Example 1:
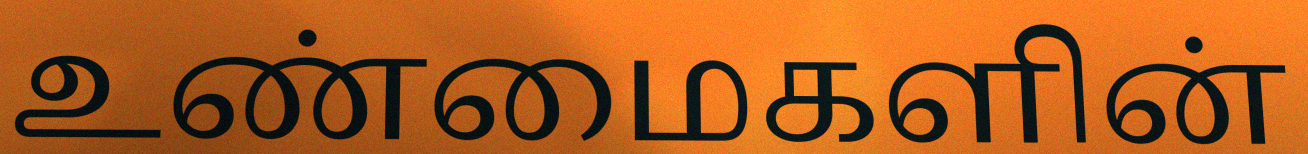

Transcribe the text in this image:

உண்மைகளின்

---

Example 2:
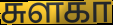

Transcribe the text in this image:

சுளகா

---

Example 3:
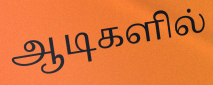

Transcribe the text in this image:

ஆடிகளில்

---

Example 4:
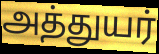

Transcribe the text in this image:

அத்துயர்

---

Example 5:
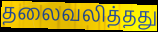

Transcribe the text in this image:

தலைவலித்தது